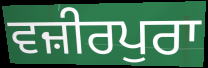
ਵਜ਼ੀਰਪੁਰਾ